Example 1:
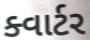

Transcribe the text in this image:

ક્વાર્ટર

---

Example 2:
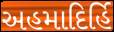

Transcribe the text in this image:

અહમાદિર્હિ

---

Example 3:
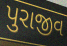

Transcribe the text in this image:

પુરાજીવ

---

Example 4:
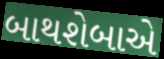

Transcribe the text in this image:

બાથશેબાએ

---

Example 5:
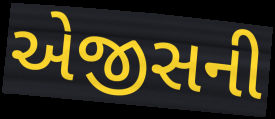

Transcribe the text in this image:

એજીસની